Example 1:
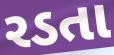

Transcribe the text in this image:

રડતા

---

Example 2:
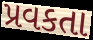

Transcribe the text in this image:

પ્રવકતા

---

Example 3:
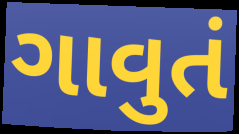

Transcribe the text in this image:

ગાવુતં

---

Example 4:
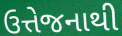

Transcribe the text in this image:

ઉત્તેજનાથી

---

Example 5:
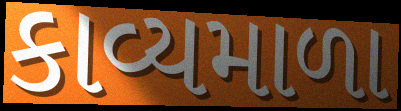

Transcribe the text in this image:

કાવ્યમાળા